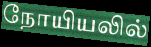
நோயியலில்